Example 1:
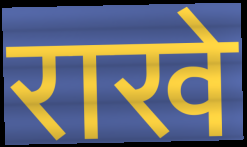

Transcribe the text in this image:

राखे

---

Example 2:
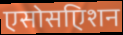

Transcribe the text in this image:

एसोसएिशन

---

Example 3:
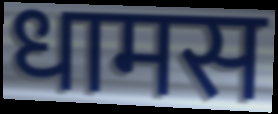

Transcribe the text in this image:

धामस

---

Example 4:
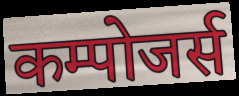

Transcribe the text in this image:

कम्पोजर्स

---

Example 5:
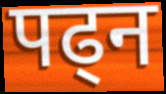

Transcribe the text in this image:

पढ्न